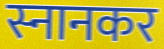
स्नानकर